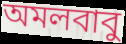
অমলবাবু